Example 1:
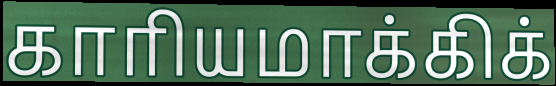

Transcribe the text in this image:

காரியமாக்கிக்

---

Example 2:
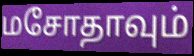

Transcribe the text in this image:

மசோதாவும்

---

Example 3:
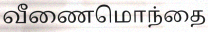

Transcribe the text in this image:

வீணைமொந்தை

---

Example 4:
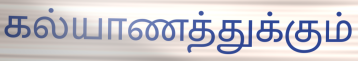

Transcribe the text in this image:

கல்யாணத்துக்கும்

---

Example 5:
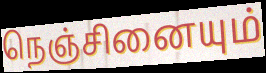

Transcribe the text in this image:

நெஞ்சினையும்